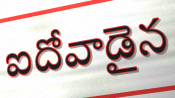
ఐదోవాడైన